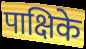
पाक्षिके